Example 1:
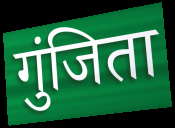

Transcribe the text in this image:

गुंजिता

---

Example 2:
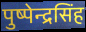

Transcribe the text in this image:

पुष्पेन्द्रसिंह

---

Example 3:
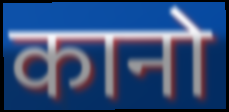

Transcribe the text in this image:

कानो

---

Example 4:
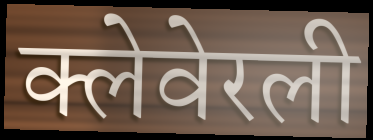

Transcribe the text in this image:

क्लेवेरली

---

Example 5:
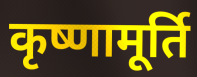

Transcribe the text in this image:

कृष्णामूर्ति